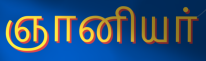
ஞானியர்